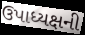
ઉપાધ્યક્ષની